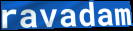
ravadam